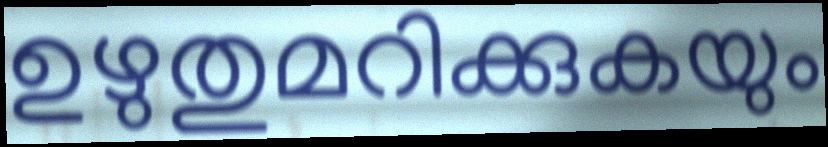
ഉഴുതുമറിക്കുകയും